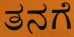
ತನಗೆ